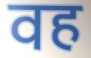
वह